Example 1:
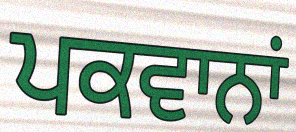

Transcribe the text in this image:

ਪਕਵਾਨਾਂ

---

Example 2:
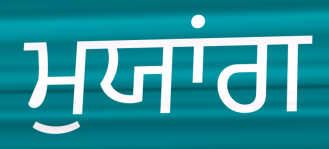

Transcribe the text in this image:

ਮੁਯਾਂਗ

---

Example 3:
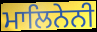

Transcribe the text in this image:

ਮਾਲਿਨੇਨੀ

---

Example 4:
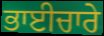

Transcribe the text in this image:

ਭਾਈਚਾਰੇ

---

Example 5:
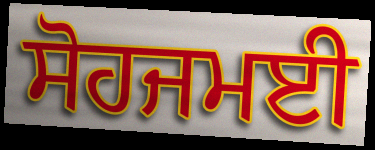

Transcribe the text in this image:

ਸੋਹਜਮਈ